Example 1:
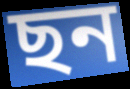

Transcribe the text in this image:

ছন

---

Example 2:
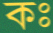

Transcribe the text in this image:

কঃ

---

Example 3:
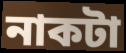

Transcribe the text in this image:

নাকটা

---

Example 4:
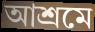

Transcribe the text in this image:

আশ্রমে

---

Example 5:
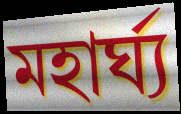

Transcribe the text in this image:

মহার্ঘ্য